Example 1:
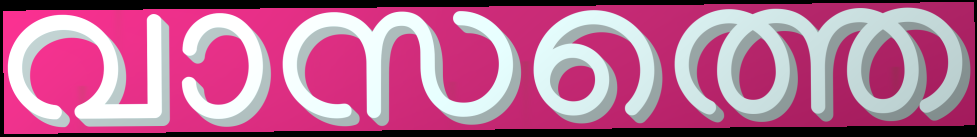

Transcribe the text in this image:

വാസത്തെ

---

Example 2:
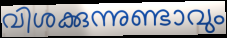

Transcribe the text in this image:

വിശക്കുന്നുണ്ടാവും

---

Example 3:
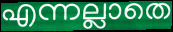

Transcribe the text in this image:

എന്നല്ലാതെ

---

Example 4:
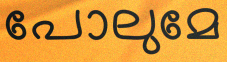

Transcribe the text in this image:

പോലുമേ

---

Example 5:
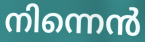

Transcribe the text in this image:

നിന്നെൻ